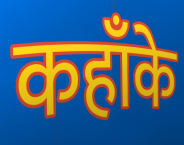
कहाँके